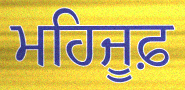
ਮਹਿਜੂਫ਼